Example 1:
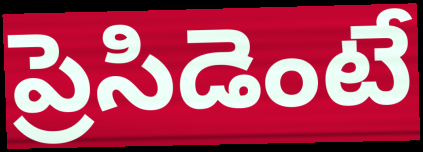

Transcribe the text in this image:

ప్రెసిడెంటే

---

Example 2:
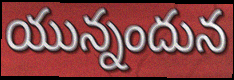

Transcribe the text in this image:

యున్నందున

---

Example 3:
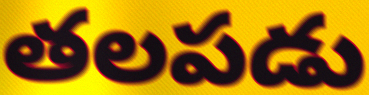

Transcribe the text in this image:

తలపడు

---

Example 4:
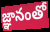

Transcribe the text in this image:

జ్ఞానంతో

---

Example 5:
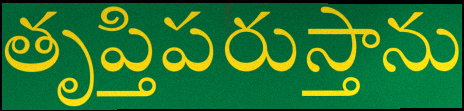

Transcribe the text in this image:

తృప్తిపరుస్తాను